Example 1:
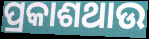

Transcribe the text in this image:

ପ୍ରକାଶଥାଉ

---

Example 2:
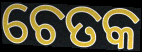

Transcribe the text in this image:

ଚେତକ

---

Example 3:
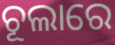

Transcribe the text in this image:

ଚୂଲାରେ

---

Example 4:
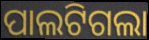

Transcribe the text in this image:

ପାଲଟିଗଲା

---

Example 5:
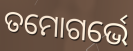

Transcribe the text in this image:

ତମୋଗର୍ଭେ